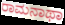
ರಾಮನಾಥಾ